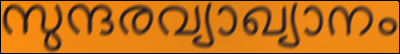
സുന്ദരവ്യാഖ്യാനം